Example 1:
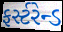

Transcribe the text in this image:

ફર્સ્ટરેન્ડ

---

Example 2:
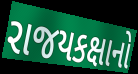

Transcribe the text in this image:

રાજયકક્ષાનો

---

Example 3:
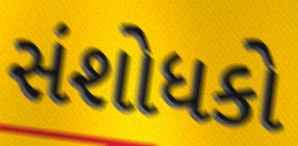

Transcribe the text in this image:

સંશોધકો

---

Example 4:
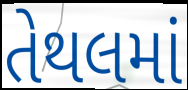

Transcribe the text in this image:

તેથલમાં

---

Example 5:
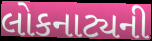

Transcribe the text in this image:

લોકનાટ્યની